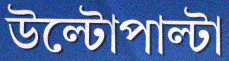
উল্টোপাল্টা